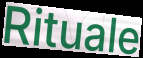
Rituale